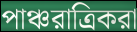
পাঞ্চরাত্রিকরা